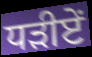
ਧੜੀਏਂ